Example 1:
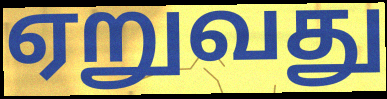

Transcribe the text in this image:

ஏறுவது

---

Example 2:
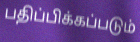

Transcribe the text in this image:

பதிப்பிக்கப்படும்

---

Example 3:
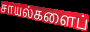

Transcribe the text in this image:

சாயல்களைப்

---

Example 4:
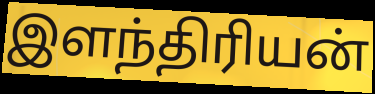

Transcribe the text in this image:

இளந்திரியன்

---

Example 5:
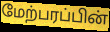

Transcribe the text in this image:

மேற்பரப்பின்